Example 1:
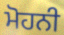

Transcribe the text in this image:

ਮੋਹਨੀ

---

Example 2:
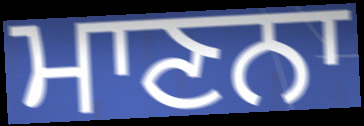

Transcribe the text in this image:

ਮਾਣਨਾ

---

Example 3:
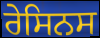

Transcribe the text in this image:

ਰੇਸਿਨਸ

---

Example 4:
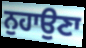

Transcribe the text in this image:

ਨੁਹਾਉਣਾ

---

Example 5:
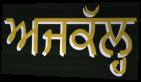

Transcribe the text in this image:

ਅਜਕੱਲ੍ਹ